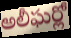
అలీఘర్లో